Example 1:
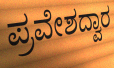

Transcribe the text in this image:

ಪ್ರವೇಶದ್ವಾರ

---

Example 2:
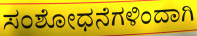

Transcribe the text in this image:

ಸಂಶೋಧನೆಗಳಿಂದಾಗಿ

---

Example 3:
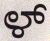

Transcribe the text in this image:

ಳ್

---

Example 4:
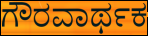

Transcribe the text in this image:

ಗೌರವಾರ್ಥಕ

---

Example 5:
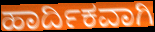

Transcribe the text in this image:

ಹಾರ್ದಿಕವಾಗಿ